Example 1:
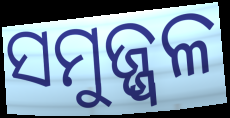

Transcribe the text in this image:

ସମୁଜ୍ଜ୍ୱଳ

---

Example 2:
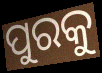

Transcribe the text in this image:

ପୁରକୁ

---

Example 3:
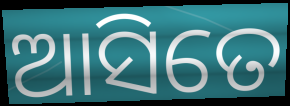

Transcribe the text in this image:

ଆସିତେ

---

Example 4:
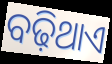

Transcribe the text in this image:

ବଢ଼ିଥାଏ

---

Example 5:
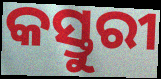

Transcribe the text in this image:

କସ୍ତୁରୀ